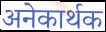
अनेकार्थक